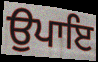
ਉਪਾਇ